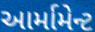
આર્મામેન્ટ